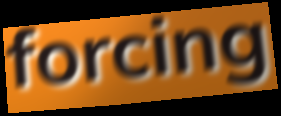
forcing